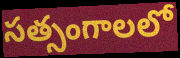
సత్సంగాలలో